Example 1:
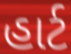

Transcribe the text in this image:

હાર્ટ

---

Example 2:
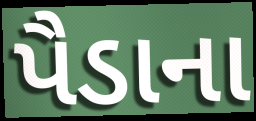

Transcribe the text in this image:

પૈડાના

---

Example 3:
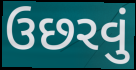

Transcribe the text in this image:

ઉછરવું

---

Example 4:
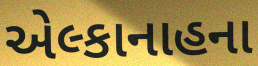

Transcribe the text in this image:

એલ્કાનાહના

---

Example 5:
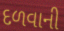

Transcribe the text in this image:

દળવાની